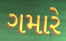
ગમારે